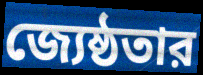
জ্যেষ্ঠতার